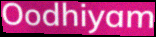
Oodhiyam